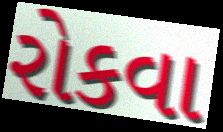
રોકવા